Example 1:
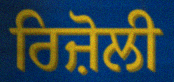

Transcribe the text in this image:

ਰਿਜ਼ੋਲੀ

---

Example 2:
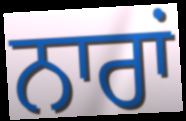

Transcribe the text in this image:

ਨਾਰਾਂ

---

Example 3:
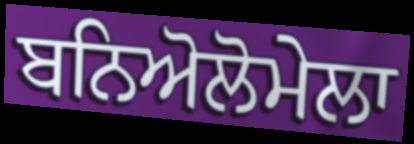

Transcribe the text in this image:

ਬਨਿਅੋਲੋਮੇਲਾ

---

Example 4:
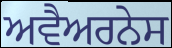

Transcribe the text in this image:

ਅਵੈਅਰਨੇਸ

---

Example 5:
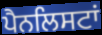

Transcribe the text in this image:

ਪੈਨਲਿਸਟਾਂ